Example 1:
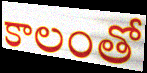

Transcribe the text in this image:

కాలంతో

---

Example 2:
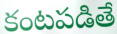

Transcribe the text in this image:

కంటపడితే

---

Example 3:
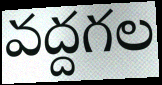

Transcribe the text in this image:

వద్దగల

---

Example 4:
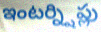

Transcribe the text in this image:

ఇంటర్న్షిప్లు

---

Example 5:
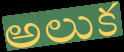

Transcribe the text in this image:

అలుక